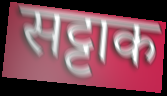
सट्टाक